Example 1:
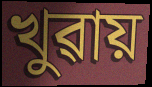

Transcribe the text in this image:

খুৱায়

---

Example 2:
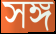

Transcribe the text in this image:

সঙ্গ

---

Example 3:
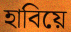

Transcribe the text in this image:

হাবিয়ে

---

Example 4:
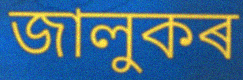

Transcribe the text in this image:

জালুকৰ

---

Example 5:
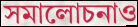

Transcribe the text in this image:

সমালোচনাও